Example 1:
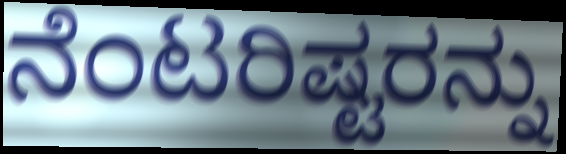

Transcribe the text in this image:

ನೆಂಟರಿಷ್ಟರನ್ನು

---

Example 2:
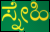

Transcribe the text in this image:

ಸ್ನೇಹಿ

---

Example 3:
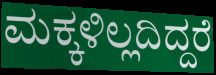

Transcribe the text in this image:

ಮಕ್ಕಳಿಲ್ಲದಿದ್ದರೆ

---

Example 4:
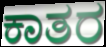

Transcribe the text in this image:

ಕಾತರ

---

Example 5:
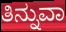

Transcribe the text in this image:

ತಿನ್ನುವಾ